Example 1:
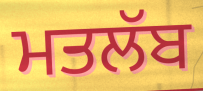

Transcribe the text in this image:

ਮਤਲੱਬ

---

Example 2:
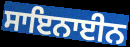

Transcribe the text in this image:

ਸਾਇਨਾਈਨ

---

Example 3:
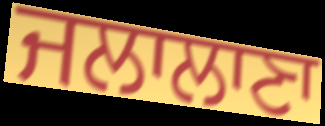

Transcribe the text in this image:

ਜਲਾਲਾਣਾ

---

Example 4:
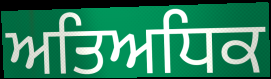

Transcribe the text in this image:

ਅਤਿਅਧਿਕ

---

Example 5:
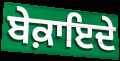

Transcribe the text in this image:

ਬੇਕ਼ਾਇਦੇ